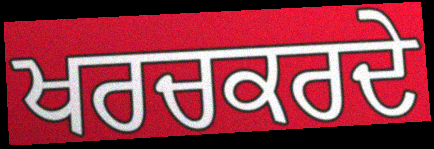
ਖਰਚਕਰਦੇ